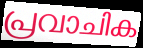
പ്രവാചിക